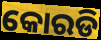
କୋରଡି